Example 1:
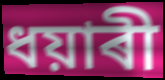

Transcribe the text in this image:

ধয়াৰী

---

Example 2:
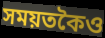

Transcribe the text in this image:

সময়তকৈও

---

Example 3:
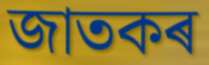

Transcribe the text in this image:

জাতকৰ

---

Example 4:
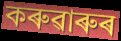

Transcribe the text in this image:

কৰুৱাৰুৰ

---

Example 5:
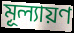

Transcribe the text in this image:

মূল্যায়ণ